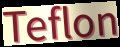
Teflon